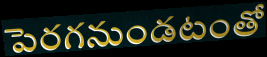
పెరగనుండటంతో